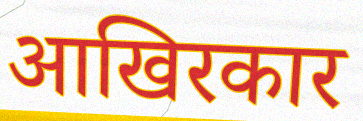
आखिरकार